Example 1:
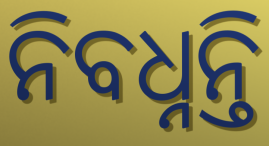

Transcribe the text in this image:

ନିବଧ୍ନନ୍ତି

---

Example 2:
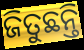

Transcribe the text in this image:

ଜିତୁଛନ୍ତି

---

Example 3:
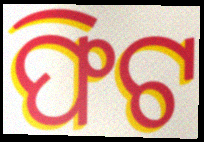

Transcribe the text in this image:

ଫିଟ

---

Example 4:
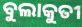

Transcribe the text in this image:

ବୁଲାକୁତୀ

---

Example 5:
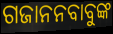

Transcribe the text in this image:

ଗଜାନନବାବୁଙ୍କ